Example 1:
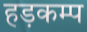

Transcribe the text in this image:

हड़कम्‍प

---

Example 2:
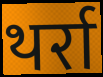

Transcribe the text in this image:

थर्रा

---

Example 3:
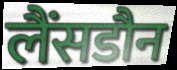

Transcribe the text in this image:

लैंसडौन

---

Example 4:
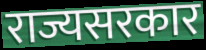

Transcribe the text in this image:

राज्यसरकार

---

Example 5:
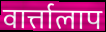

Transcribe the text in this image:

वार्त्तालाप